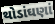
થોડાંઘણાં